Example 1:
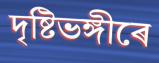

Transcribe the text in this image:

দৃষ্টিভঙ্গীৰে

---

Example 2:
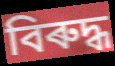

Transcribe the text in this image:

বিৰুদ্ধ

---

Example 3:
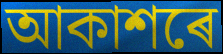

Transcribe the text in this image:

আকাশৰে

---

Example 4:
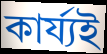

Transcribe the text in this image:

কাৰ্য্যই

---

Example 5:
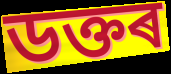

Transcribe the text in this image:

ডক্তৰ